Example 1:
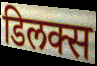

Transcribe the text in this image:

डिलक्स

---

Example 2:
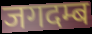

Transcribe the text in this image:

जगदम्ब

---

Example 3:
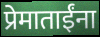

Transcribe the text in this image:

प्रेमाताईंना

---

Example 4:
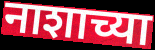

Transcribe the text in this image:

नाशाच्या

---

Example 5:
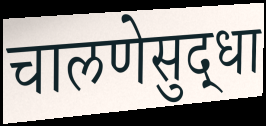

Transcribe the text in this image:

चालणेसुद्धा